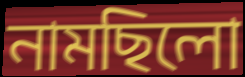
নামছিলো